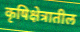
कृषिक्षेत्रातील